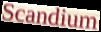
Scandium